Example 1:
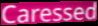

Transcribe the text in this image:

Caressed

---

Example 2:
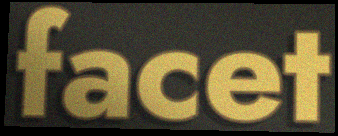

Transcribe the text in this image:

facet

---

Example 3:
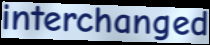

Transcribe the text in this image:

interchanged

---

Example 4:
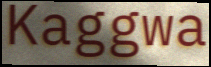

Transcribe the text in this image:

Kaggwa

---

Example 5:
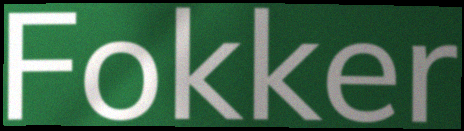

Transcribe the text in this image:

Fokker